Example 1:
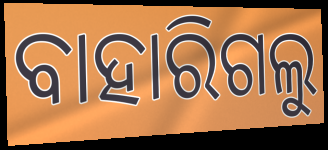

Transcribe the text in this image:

ବାହାରିଗଲୁ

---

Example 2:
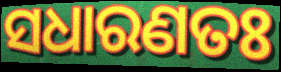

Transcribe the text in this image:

ସଧାରଣତଃ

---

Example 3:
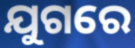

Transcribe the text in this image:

ଯୁଗରେ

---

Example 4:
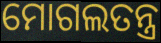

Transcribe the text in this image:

ମୋଗଲତନ୍ତ୍ର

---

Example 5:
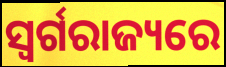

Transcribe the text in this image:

ସ୍ୱର୍ଗରାଜ୍ୟରେ